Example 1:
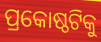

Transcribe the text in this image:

ପ୍ରକୋଷ୍ଠଟିକୁ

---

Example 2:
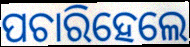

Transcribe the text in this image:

ପଚାରିହେଲେ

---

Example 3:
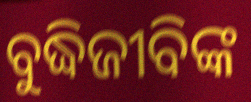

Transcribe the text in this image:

ବୁଦ୍ଧିଜୀବିଙ୍କ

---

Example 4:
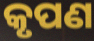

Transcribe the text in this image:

କୃପଣ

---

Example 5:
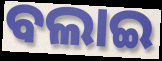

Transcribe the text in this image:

ବଲାଇ